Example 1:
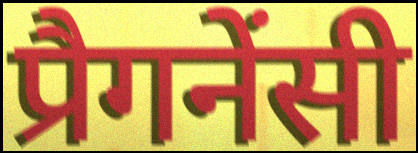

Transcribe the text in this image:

प्रैगनेंसी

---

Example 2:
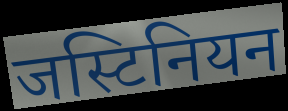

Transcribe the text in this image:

जस्टिनियन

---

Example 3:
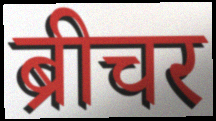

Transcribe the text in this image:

ब्रीचर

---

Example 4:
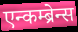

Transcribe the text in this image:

एन्कम्ब्रेन्स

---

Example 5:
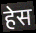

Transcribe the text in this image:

हेस